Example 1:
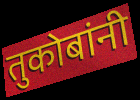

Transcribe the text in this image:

तुकोबांनी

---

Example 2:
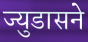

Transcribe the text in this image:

ज्युडासने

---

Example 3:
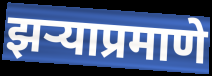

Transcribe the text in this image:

झऱ्याप्रमाणे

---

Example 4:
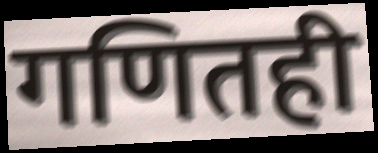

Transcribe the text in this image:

गणितही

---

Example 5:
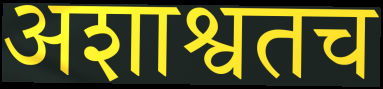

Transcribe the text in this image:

अशाश्वतच